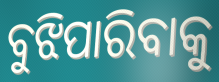
ବୁଝିପାରିବାକୁ